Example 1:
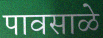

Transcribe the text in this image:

पावसाळे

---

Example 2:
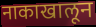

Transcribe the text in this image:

नाकाखालून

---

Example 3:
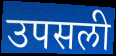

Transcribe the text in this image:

उपसली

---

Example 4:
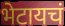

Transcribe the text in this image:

भेटायचं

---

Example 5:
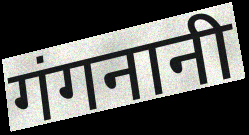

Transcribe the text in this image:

गंगनानी